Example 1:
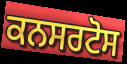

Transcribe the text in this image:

ਕਨਸਰਟੋਸ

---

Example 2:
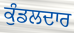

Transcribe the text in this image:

ਕੁੰਡਲਦਾਰ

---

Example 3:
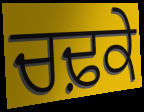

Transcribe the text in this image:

ਚਢ਼ਕੇ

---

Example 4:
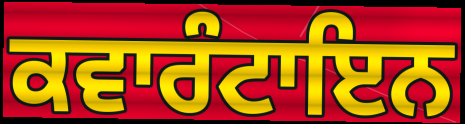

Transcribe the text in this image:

ਕਵਾਰੰਟਾਇਨ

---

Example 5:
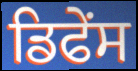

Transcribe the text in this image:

ਡਿਫੇਂਸ